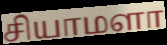
சியாமளா